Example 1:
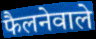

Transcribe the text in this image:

फैलनेवाले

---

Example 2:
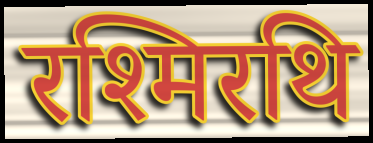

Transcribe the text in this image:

रश्मिरथि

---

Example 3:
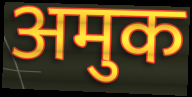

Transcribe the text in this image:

अमुक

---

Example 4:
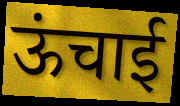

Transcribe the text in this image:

ऊंचाई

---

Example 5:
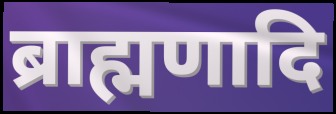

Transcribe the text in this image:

ब्राह्मणादि